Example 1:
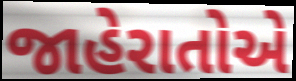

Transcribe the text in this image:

જાહેરાતોએ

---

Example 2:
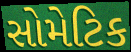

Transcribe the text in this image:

સોમેટિક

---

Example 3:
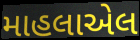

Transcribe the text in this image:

માહલાએલ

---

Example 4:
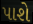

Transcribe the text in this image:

પાશે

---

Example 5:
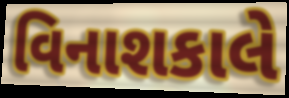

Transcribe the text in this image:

વિનાશકાલે